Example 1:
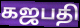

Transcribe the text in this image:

கஜபதி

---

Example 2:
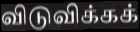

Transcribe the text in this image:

விடுவிக்கக்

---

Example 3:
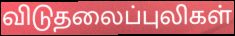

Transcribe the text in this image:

விடுதலைப்புலிகள்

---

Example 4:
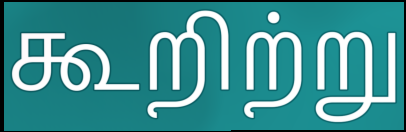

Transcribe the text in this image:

கூறிற்று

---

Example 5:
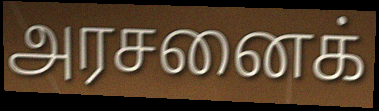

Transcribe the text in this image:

அரசனைக்